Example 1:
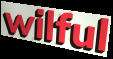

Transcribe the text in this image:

wilful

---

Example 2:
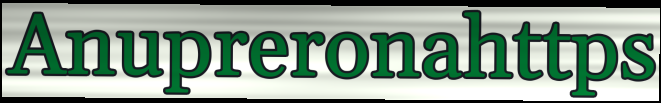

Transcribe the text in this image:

Anupreronahttps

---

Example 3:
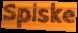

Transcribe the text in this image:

Spiske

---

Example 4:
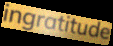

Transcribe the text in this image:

ingratitude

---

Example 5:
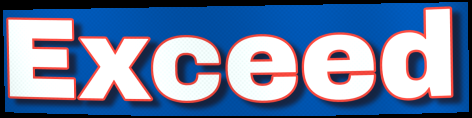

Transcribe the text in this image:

Exceed